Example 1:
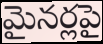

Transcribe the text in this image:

మైనర్లపై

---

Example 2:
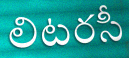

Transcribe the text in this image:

లిటరసీ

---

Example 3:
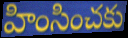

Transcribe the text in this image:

హింసించకు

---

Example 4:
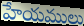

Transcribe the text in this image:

హేయములు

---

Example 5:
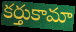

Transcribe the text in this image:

కర్తుకామా